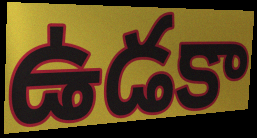
ఉడకా